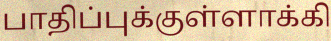
பாதிப்புக்குள்ளாக்கி